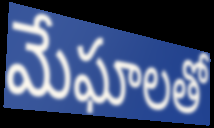
మేఘాలతో